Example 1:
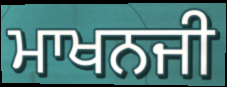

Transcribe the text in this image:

ਮਾਖਨਜੀ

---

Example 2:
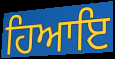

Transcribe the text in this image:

ਹਿਆਇ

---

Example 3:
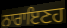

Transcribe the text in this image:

ਨਾਰਾਇਣਹ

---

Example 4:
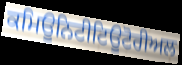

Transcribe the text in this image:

ਕਮਿਊਨਿਟੀਟਿਊਟੋਰੀਅਲ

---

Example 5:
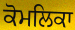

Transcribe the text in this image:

ਕੋਮਲਿਕਾ